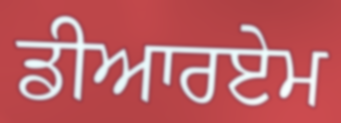
ਡੀਆਰਏਮ